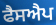
ਫੈਸਐਪ